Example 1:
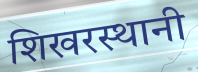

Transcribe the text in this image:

शिखरस्थानी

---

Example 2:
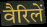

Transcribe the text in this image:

वैरिलें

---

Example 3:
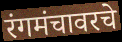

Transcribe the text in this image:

रंगमंचावरचे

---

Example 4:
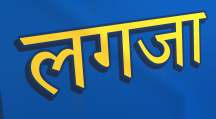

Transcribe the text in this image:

लगजा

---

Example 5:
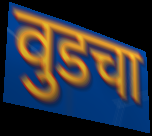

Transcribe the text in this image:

वुडचा